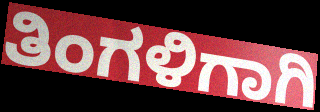
ತಿಂಗಳಿಗಾಗಿ